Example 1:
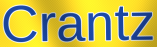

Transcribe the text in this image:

Crantz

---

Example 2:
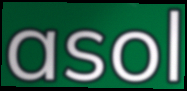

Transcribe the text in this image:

asol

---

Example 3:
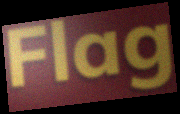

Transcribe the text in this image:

Flag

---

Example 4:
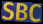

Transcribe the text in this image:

SBC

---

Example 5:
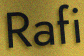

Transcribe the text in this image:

Rafi